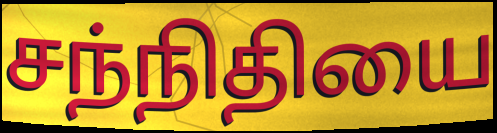
சந்நிதியை